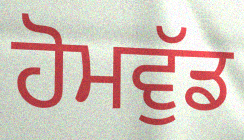
ਹੋਮਵੁੱਡ